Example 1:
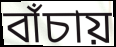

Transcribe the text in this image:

বাঁচায়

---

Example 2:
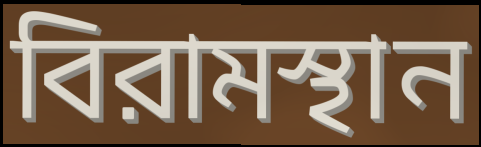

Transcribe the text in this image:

বিরামস্থান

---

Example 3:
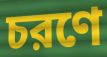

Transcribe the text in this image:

চরণে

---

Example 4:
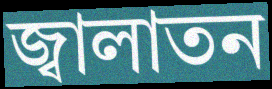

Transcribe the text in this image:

জ্বালাতন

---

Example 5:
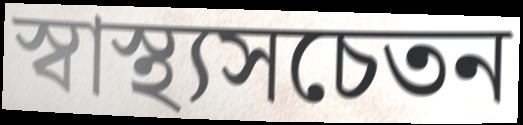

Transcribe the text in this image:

স্বাস্থ্যসচেতন